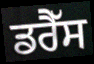
ਡਰੈੱਸ